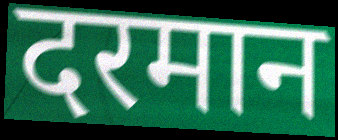
दरमान